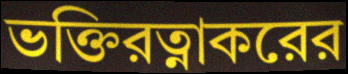
ভক্তিরত্নাকরের